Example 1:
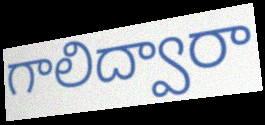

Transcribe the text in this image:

గాలిద్వారా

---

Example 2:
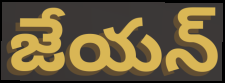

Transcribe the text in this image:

జేయన్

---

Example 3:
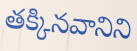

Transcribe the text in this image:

తక్కినవానిని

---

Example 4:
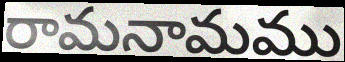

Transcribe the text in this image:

రామనామము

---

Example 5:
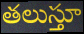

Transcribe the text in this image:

తలుస్తూ